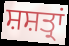
ਸ਼ਸ਼ਤ੍ਰਾਂ